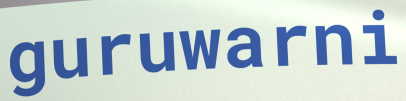
guruwarni